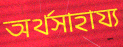
অর্থসাহায্য